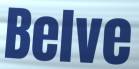
Belve